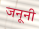
जनूनी